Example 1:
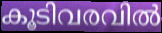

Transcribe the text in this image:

കൂടിവരവിൽ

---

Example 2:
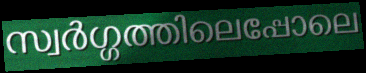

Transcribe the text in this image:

സ്വർഗ്ഗത്തിലെപ്പോലെ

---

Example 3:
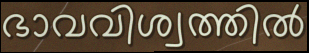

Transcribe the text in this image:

ഭാവവിശ്വത്തിൽ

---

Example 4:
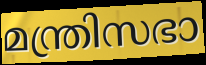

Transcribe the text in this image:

മന്ത്രിസഭാ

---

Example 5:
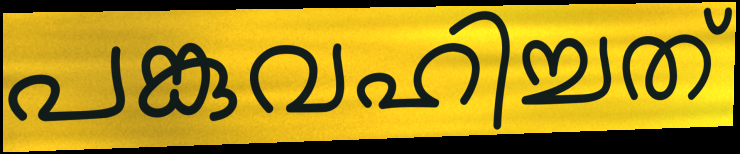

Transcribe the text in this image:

പങ്കുവഹിച്ചത്